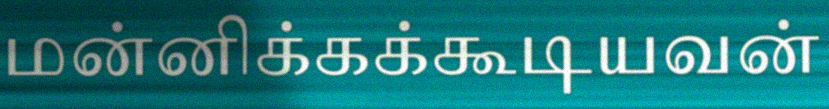
மன்னிக்கக்கூடியவன்